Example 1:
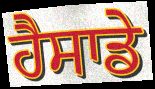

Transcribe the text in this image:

ਹੈਸਾਡੇ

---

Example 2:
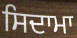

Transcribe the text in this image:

ਸਿਦਾਮਾ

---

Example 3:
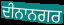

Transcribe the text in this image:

ਦੀਨਾਨਗਰ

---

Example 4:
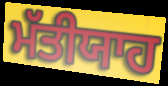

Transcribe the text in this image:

ਮੱਤੀਯਾਹ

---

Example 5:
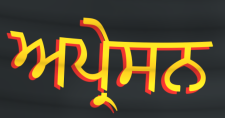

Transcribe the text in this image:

ਅਪ੍ਰੇਸਨ